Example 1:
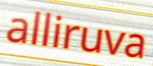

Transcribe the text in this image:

alliruva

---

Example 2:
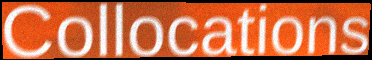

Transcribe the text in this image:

Collocations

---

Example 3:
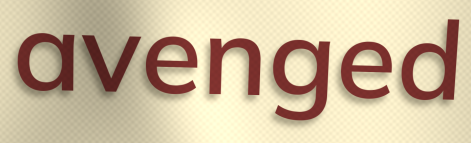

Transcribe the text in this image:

avenged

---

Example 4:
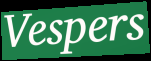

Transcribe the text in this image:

Vespers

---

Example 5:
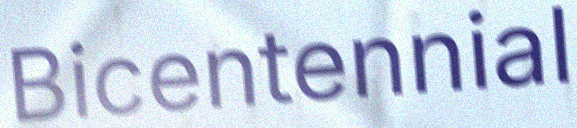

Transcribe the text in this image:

Bicentennial